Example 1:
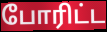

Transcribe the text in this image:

போரிட்ட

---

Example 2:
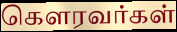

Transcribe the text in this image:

கெளரவர்கள்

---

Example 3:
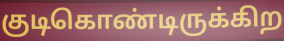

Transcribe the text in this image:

குடிகொண்டிருக்கிற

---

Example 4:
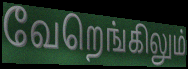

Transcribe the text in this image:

வேறெங்கிலும்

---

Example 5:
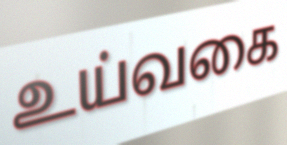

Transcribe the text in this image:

உய்வகை